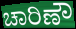
ಚಾರಿಣೌ